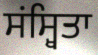
ਸਂਸ੍ਥਿਤਾ